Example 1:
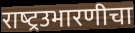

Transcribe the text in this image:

राष्ट्रउभारणीचा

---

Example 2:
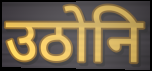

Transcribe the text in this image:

उठोनि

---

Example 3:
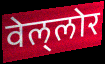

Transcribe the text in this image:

वेल्लोर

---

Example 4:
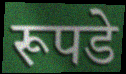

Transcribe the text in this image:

रूपडे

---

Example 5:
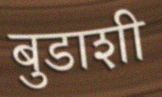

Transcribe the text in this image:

बुडाशी